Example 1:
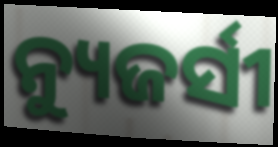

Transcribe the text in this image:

ନ୍ୟୁଜର୍ସୀ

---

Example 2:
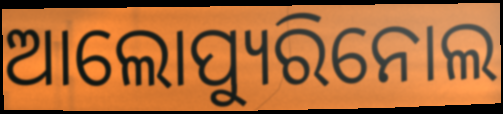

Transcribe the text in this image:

ଆଲୋପ୍ୟୁରିନୋଲ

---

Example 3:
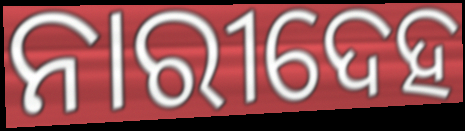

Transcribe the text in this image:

ନାରୀଦେହ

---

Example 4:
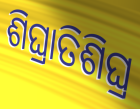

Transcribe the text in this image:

ଶିଘ୍ରାତିଶିଘ୍ର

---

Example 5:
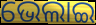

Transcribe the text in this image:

ଭେଲାଇ